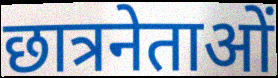
छात्रनेताओं